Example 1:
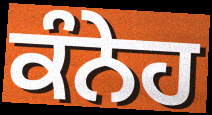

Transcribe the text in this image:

ਕੰਨੇਹ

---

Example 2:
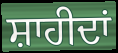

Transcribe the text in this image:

ਸ਼ਾਹੀਦਾਂ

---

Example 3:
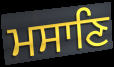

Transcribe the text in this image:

ਮਸਾਣਿ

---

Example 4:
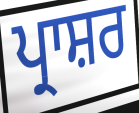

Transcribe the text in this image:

ਪ੍ਰਾਸ਼ਰ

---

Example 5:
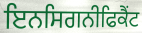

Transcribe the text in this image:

ਇਨਸਿਗਨੀਫਿਕੈਂਟ